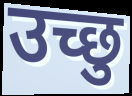
उच्छु